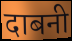
दाबनी